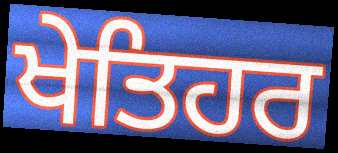
ਖੇਤਿਹਰ